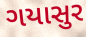
ગયાસુર